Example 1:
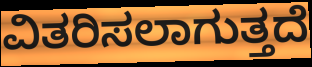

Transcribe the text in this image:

ವಿತರಿಸಲಾಗುತ್ತದೆ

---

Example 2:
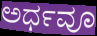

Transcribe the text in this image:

ಅರ್ಧವೂ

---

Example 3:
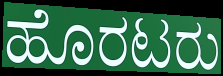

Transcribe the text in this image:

ಹೊರಟರು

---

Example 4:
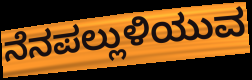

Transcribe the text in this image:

ನೆನಪಲ್ಲುಳಿಯುವ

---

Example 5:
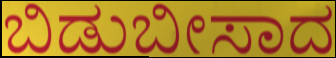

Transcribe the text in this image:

ಬಿಡುಬೀಸಾದ